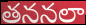
తననలా